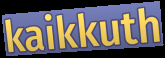
kaikkuth